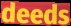
deeds